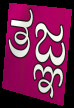
ತಜ್ಞ